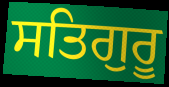
ਸਤਿਗੁਰੂ